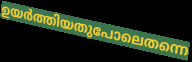
ഉയർത്തിയതുപോലെതന്നെ